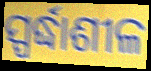
ସ୍ପର୍ଦ୍ଧାଶୀଳ